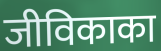
जीविकाका